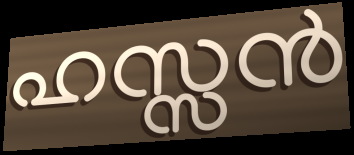
ഹസ്സൻ